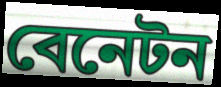
বেনেটন